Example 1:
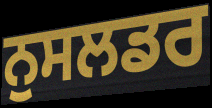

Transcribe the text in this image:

ਨੁਸਲਡਰ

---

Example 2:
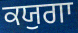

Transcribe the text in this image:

ਕਯੁਗਾ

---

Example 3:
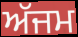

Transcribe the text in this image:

ਅੱਜਮ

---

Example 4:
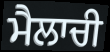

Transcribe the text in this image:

ਮੈਲਾਚੀ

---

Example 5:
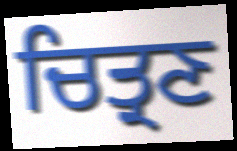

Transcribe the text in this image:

ਚਿਤ੍ਰਣ